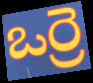
ఒర్రె